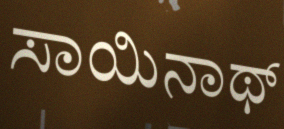
ಸಾಯಿನಾಥ್